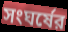
সংঘর্ষের